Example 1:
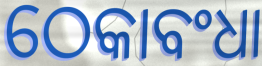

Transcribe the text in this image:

ଠେକାବଂଧା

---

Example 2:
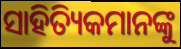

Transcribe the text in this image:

ସାହିତ୍ୟିକମାନଙ୍କୁ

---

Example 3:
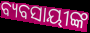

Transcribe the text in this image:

ବ୍ୟବସାୟୀଙ୍କ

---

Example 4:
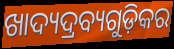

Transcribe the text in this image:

ଖାଦ୍ୟଦ୍ରବ୍ୟଗୁଡ଼ିକର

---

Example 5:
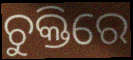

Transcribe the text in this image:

ଚୁକ୍ତିରେ